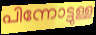
പിന്നോട്ടുള്ള